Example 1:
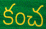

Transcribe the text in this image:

కంచ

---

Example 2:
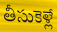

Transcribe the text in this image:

తీసుకెళ్లే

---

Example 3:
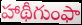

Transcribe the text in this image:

హాథీగుంఫా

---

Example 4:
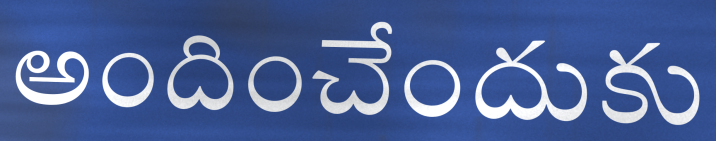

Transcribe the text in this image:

అందించేందుకు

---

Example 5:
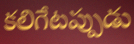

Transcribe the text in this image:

కలిగేటప్పుడు